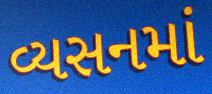
વ્યસનમાં